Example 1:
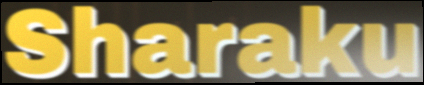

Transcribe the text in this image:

Sharaku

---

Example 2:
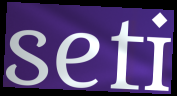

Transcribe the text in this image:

seti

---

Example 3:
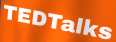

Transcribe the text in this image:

TEDTalks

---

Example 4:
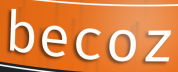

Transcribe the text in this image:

becoz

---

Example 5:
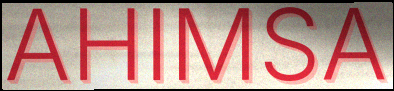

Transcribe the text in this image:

AHIMSA